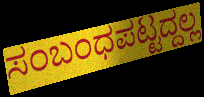
ಸಂಬಂಧಪಟ್ಟದ್ದಲ್ಲ